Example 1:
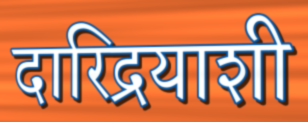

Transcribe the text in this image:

दारिद्रयाशी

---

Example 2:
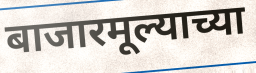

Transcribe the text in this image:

बाजारमूल्याच्या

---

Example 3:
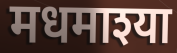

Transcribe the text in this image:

मधमाश्या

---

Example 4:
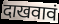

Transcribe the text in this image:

दाखवावं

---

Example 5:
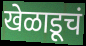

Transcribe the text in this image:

खेळाडूचं